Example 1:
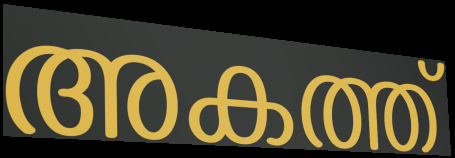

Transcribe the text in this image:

അകത്ത്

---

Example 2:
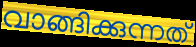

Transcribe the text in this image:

വാങ്ങിക്കുന്നത്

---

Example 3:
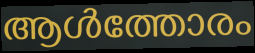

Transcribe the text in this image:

ആൾത്തോരം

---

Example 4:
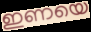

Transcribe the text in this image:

ഇണയെ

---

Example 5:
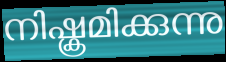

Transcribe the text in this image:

നിഷ്ക്രമിക്കുന്നു